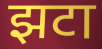
झटा